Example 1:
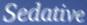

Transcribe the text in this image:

Sedative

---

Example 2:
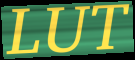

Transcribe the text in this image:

LUT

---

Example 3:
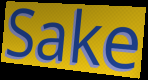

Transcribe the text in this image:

Sake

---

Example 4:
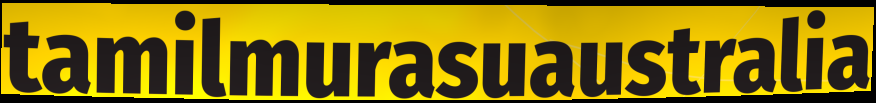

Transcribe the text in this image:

tamilmurasuaustralia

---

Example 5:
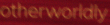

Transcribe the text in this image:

otherworldly